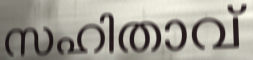
സഹിതാവ്